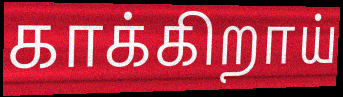
காக்கிறாய்